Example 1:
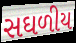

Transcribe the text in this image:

સઘળીય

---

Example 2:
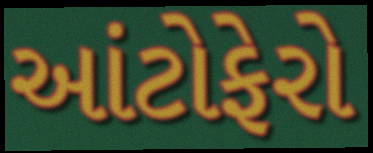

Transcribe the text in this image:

આંટોફેરો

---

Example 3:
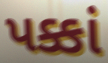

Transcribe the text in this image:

પક્કાં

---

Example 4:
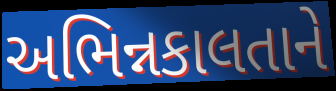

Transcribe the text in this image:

અભિન્નકાલતાને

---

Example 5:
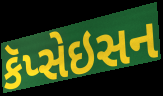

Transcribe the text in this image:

કૅપ્સેઇસન